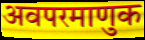
अवपरमाणुक